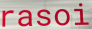
rasoi